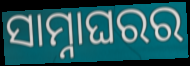
ସାମ୍ନାଘରର